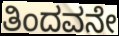
ತಿಂದವನೇ